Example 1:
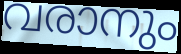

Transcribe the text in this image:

വരാനും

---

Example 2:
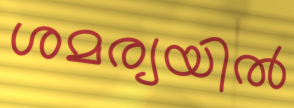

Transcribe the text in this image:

ശമര്യയിൽ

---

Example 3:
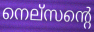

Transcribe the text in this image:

നെല്സന്റെ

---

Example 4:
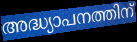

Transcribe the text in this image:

അദ്ധ്യാപനത്തിന്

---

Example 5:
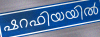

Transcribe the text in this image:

ഷറഫിയയിൽ